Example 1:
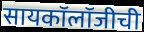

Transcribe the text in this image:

सायकॉलॉजीची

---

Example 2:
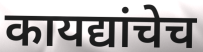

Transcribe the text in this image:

कायद्यांचेच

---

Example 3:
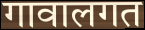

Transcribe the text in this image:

गावालगत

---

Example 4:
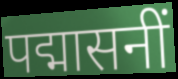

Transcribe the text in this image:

पद्मासनीं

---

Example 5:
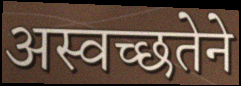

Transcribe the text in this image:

अस्वच्छतेने